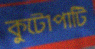
কুটোপাটি